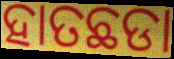
ହାତଛଡା